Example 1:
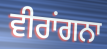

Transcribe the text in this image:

ਵੀਰਾਂਗਨਾ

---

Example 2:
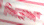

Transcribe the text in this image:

ਅਿੜਆ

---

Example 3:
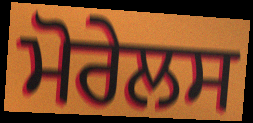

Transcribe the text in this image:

ਮੋਰੇਲਸ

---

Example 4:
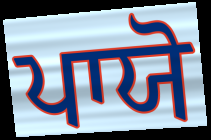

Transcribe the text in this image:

ਪਾਯੋ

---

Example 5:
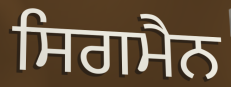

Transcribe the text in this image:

ਸਿਗਮੈਨ